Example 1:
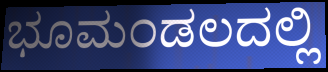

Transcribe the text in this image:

ಭೂಮಂಡಲದಲ್ಲಿ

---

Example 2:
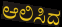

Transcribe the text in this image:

ಆಲಿಸಿದ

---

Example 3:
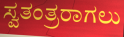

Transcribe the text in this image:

ಸ್ವತಂತ್ರರಾಗಲು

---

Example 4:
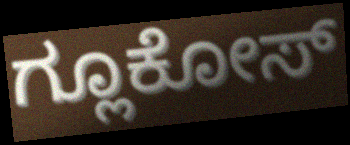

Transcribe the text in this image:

ಗ್ಲೂಕೋಸ್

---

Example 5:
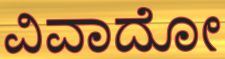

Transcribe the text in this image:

ವಿವಾದೋ